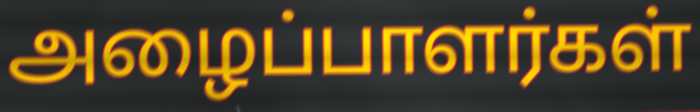
அழைப்பாளர்கள்